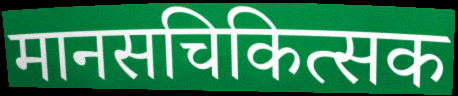
मानसचिकित्सक